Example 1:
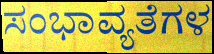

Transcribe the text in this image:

ಸಂಭಾವ್ಯತೆಗಳ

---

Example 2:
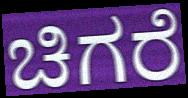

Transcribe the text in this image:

ಚಿಗರೆ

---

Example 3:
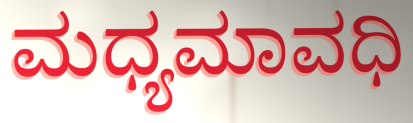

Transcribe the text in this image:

ಮಧ್ಯಮಾವಧಿ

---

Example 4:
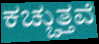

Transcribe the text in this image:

ಕಚ್ಚುತ್ತವೆ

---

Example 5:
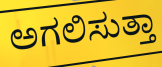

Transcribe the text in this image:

ಅಗಲಿಸುತ್ತಾ